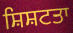
ਸ਼ਿਸ਼ਟਤਾ